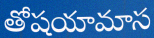
తోషయామాస